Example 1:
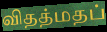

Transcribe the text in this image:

விதத்மதப்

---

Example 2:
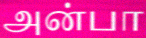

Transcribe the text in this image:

அன்பா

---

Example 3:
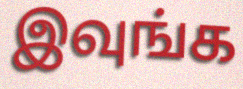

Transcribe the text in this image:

இவுங்க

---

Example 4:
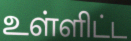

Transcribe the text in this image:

உள்ளிட்ட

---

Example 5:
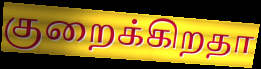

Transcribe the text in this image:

குறைக்கிறதா